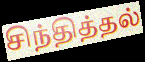
சிந்தித்தல்